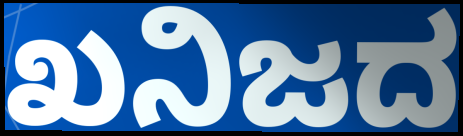
ಖನಿಜದ